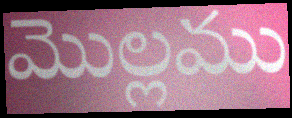
మొల్లము